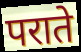
पराते